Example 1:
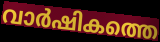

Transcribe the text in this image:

വാർഷികത്തെ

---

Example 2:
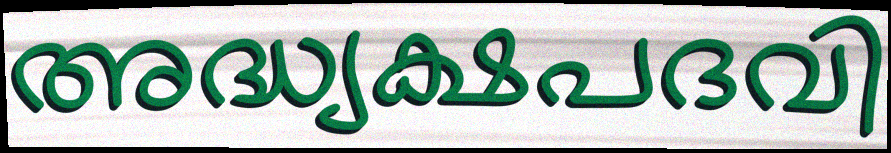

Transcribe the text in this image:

അദ്ധ്യക്ഷപദവി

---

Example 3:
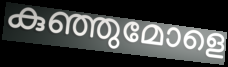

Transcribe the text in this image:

കുഞ്ഞുമോളെ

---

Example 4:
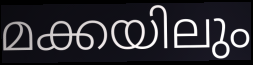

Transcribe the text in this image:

മക്കയിലും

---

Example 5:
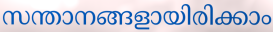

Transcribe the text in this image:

സന്താനങ്ങളായിരിക്കാം